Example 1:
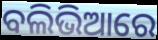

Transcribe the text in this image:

ବଲିଭିଆରେ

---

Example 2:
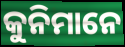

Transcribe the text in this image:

କୁନିମାନେ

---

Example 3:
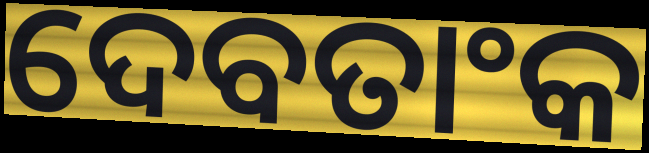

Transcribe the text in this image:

ଦେବତାଂକ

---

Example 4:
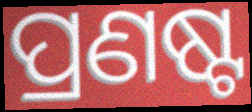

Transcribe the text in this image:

ପ୍ରଣଷ୍ଟ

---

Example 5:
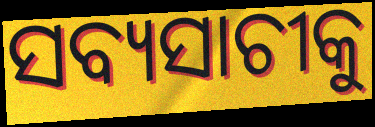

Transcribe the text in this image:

ସବ୍ୟସାଚୀକୁ